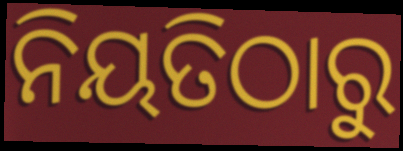
ନିୟତିଠାରୁ